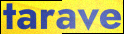
tarave